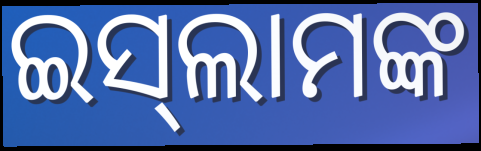
ଇସ୍‌ଲାମଙ୍କ